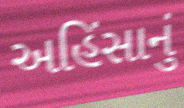
અહિંસાનું